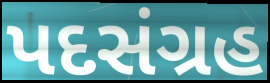
પદસંગ્રહ